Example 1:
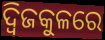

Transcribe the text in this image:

ଦ୍ୱିଜକୁଳରେ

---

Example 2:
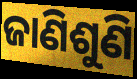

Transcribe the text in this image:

ଜାଣିଶୁଣି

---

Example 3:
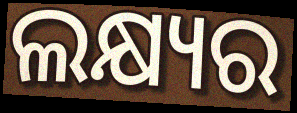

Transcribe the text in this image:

ଲକ୍ଷ୍ୟର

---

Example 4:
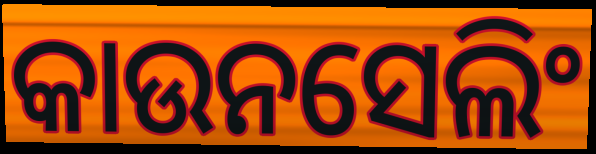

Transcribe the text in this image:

କାଉନସେଲିଂ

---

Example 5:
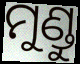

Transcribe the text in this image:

ମୁଣ୍ଡୁ